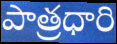
పాత్రధారి